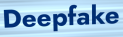
Deepfake